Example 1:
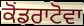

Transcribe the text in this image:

ਕੋਂਡਰਾਟੋਵਾ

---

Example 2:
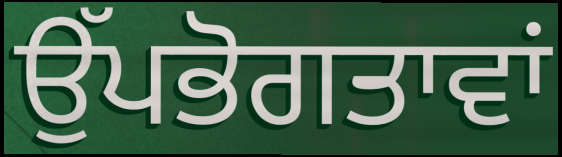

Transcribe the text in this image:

ਉੱਪਭੋਗਤਾਵਾਂ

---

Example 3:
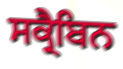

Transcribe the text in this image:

ਸਕ੍ਰੈਬਿਨ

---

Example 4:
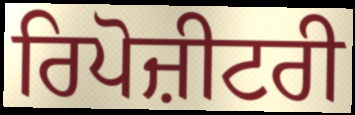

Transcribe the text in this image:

ਰਿਪੋਜ਼ੀਟਰੀ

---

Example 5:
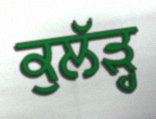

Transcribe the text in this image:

ਕੁਲੱੜ੍ਹ